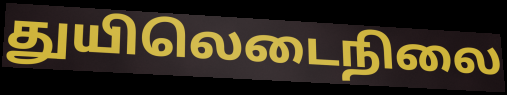
துயிலெடைநிலை